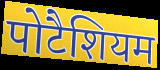
पोटैशियम